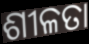
ଶୀଳତା